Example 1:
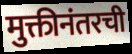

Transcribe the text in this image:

मुक्तीनंतरची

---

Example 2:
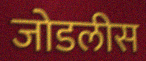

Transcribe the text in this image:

जोडलीस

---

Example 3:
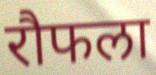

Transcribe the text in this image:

रौफला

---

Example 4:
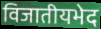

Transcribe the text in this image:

विजातीयभेद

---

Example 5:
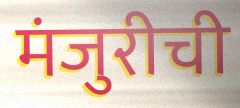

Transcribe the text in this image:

मंजुरीची